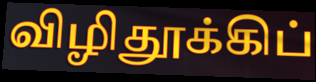
விழிதூக்கிப்